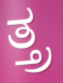
ತ್ತ್ರ